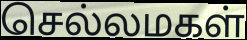
செல்லமகள்